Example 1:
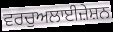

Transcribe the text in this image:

ਵਰਚੁਅਲਾਈਜ਼ੇਸ਼ਨ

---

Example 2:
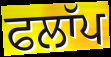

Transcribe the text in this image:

ਫਲਾੱਪ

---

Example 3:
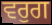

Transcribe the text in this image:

ਵਰੁਗ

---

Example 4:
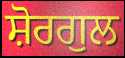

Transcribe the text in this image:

ਸ਼ੋਰਗੁਲ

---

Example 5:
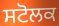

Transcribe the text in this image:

ਸਟੋਲਕ